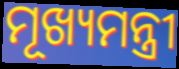
ମୂଖ୍ୟମନ୍ତ୍ରୀ